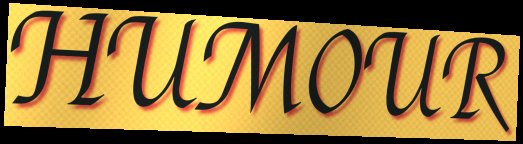
HUMOUR